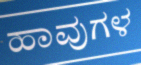
ಹಾವುಗಳ